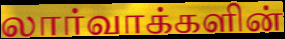
லார்வாக்களின்